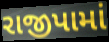
રાજીપામાં